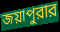
জয়াপুরার